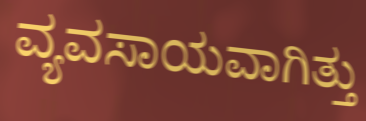
ವ್ಯವಸಾಯವಾಗಿತ್ತು